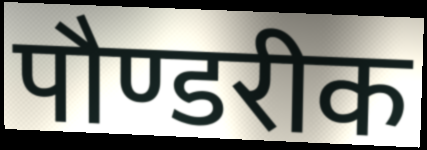
पौण्डरीक